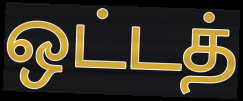
ஒட்டத்